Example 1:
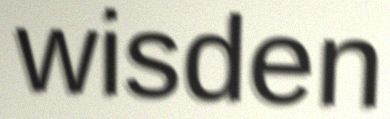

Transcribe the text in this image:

wisden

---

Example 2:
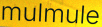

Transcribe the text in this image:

mulmule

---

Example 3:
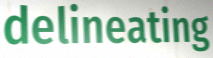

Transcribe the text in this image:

delineating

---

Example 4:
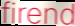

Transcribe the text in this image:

firend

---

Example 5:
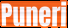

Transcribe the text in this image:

Puneri